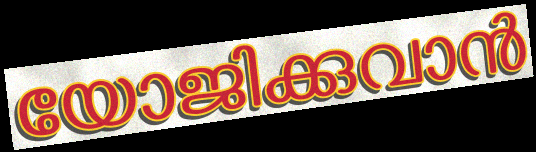
യോജിക്കുവാൻ